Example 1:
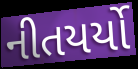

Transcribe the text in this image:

નીતયર્યો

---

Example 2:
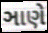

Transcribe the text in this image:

ઞાણે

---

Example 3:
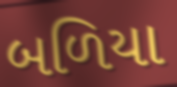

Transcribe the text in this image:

બળિયા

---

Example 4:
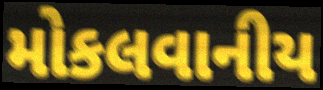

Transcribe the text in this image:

મોકલવાનીય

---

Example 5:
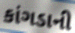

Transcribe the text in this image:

કાંગડાની